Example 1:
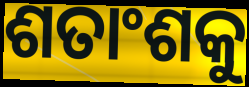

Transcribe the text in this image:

ଶତାଂଶକୁ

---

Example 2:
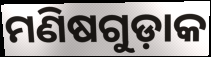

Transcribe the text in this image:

ମଣିଷଗୁଡ଼ାକ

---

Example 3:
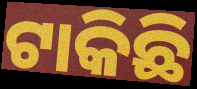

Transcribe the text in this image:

ଟାକିଛି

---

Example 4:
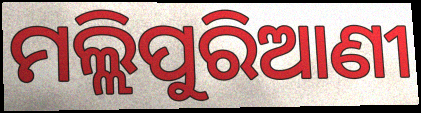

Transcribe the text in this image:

ମଲ୍ଲିପୁରିଆଣୀ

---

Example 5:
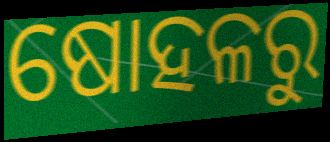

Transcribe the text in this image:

ଷୋହଳରୁ